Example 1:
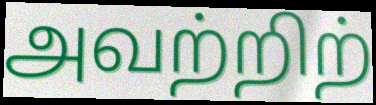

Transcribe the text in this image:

அவற்றிற்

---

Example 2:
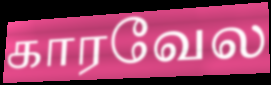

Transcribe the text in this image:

காரவேல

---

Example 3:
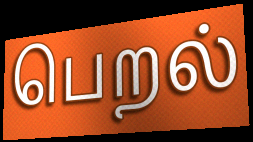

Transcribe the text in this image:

பெறல்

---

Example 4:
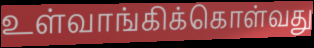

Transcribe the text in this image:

உள்வாங்கிக்கொள்வது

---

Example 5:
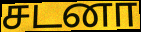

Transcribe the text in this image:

சடனா